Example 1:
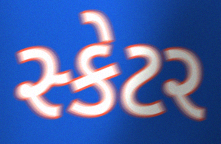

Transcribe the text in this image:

સ્કેટર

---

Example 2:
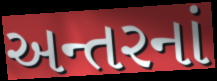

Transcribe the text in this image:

અન્તરનાં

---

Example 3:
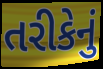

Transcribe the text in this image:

તરીકેનું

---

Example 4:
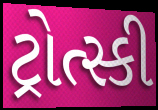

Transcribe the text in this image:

ટ્રોત્સ્કી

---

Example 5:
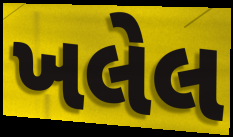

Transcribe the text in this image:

ખલેલ